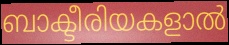
ബാക്ടീരിയകളാൽ